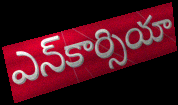
ఎన్‌కార్సియా